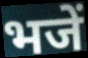
भजें